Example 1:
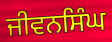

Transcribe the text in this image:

ਜੀਵਨਸਿੰਘ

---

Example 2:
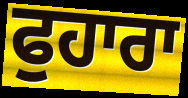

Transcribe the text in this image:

ਫੁਹਾਰਾ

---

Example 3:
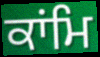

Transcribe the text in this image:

ਕਾਂਮਿ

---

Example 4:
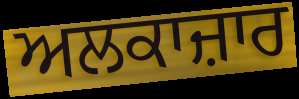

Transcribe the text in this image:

ਅਲਕਾਜ਼ਾਰ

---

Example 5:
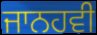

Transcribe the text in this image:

ਜਾਨਹਵੀ